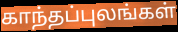
காந்தப்புலங்கள்